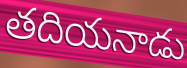
తదియనాడు